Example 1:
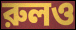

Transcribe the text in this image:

রুলও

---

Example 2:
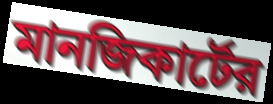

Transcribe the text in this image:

মানজিকার্টের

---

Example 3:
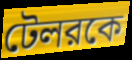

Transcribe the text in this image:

টেলরকে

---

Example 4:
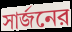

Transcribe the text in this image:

সার্জনের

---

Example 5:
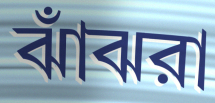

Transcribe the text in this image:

ঝাঁঝরা